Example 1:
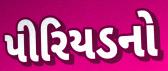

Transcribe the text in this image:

પીરિયડનો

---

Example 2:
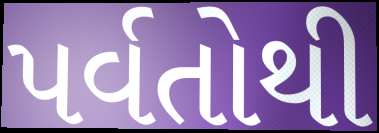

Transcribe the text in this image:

પર્વતોથી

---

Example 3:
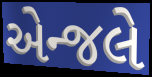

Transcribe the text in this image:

એન્જલે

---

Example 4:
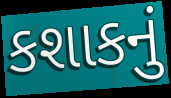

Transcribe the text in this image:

કશાકનું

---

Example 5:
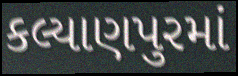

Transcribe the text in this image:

કલ્યાણપુરમાં